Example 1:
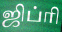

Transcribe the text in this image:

ஜிப்ரி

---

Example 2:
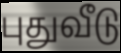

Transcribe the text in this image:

புதுவீடு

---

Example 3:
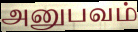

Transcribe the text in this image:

அனுபவம்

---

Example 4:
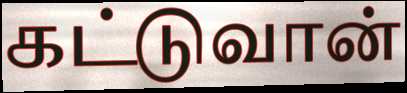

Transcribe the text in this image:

கட்டுவான்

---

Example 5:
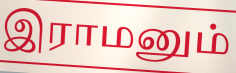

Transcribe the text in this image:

இராமனும்